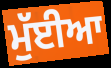
ਮੁੱਈਆ